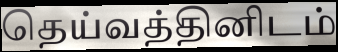
தெய்வத்தினிடம்